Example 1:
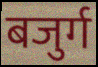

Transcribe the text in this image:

बजुर्ग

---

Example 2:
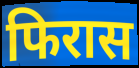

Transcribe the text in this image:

फिरास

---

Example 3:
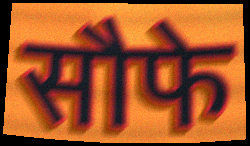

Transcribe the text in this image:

सौफे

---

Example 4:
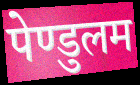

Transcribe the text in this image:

पेण्डुलम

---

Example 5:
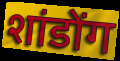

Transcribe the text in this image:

शांडोंग